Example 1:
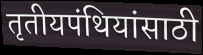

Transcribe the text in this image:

तृतीयपंथियांसाठी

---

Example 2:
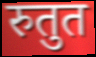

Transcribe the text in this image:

रुतुत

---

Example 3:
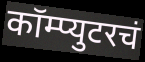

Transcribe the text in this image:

कॉम्प्युटरचं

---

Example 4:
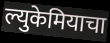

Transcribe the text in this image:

ल्युकेमियाचा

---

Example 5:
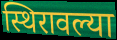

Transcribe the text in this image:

स्थिरावल्या